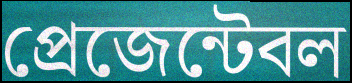
প্রেজেন্টেবল